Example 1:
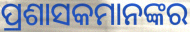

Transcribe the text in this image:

ପ୍ରଶାସକମାନଙ୍କର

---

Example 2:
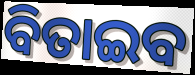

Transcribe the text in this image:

ବିତାଇବ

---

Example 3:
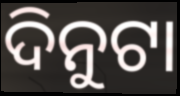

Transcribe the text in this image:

ଦିନୁଟା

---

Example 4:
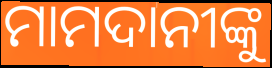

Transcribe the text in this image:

ମାମଦାନୀଙ୍କୁ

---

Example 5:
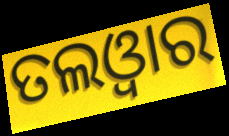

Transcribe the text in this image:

ତଲଓ୍ୱାର